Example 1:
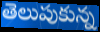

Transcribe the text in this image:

తెలుపుకున్న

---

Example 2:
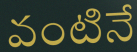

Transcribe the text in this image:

వంటినే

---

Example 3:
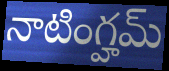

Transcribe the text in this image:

నాటింగ్హమ్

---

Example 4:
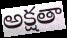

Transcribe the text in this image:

అక్షతా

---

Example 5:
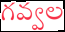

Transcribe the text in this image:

గవ్వల